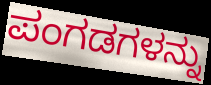
ಪಂಗಡಗಳನ್ನು